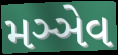
મઞ્ઞેવ